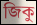
জিকু